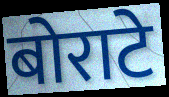
बोराटे